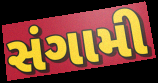
સંગામી